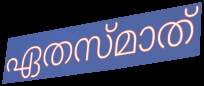
ഏതസ്മാത്